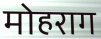
मोहराग